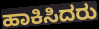
ಹಾಕಿಸಿದರು